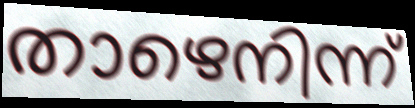
താഴെനിന്ന്